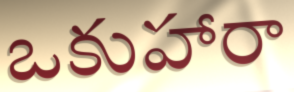
ఒకుహారా